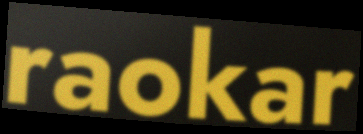
raokar